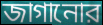
জাগানোর